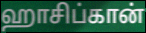
ஹாசிப்கான்